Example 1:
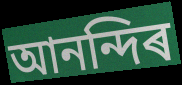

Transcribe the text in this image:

আনন্দিৰ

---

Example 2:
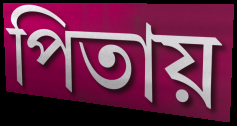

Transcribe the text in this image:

পিতায়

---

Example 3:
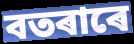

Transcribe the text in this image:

বতৰাৰে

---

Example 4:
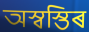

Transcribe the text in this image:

অস্বস্তিৰ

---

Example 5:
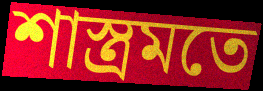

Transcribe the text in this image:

শাস্ত্ৰমতে